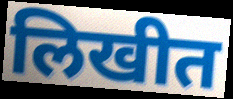
लिखीत